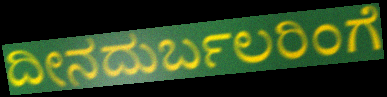
ದೀನದುರ್ಬಲರಿಂಗೆ